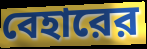
বেহারের